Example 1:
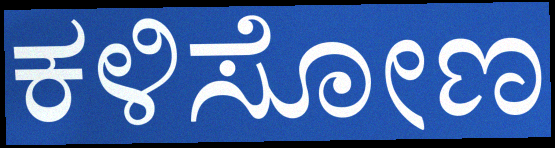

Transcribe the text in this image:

ಕಳಿಸೋಣ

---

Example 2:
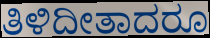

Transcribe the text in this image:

ತಿಳಿದೀತಾದರೂ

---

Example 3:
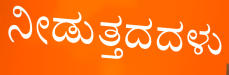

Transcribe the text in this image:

ನೀಡುತ್ತದದಳು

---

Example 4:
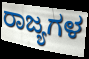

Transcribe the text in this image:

ರಾಜ್ಯಗಳ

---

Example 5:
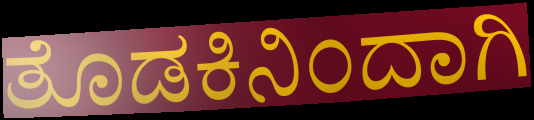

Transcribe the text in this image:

ತೊಡಕಿನಿಂದಾಗಿ